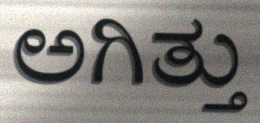
ಅಗಿತ್ತು